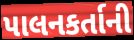
પાલનકર્તાની